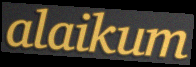
alaikum